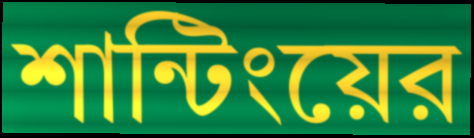
শান্টিংয়ের